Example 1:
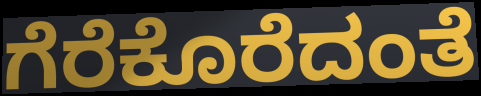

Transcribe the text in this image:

ಗೆರೆಕೊರೆದಂತೆ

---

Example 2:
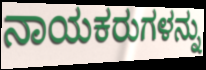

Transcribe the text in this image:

ನಾಯಕರುಗಳನ್ನು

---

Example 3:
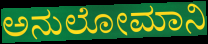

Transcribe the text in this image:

ಅನುಲೋಮಾನಿ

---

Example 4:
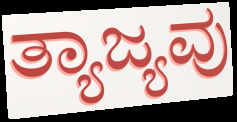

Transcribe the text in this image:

ತ್ಯಾಜ್ಯವು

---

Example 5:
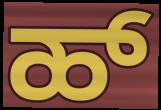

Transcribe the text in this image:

ಹ್